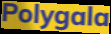
Polygala